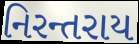
નિરન્તરાય